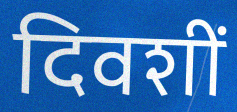
दिवशीं